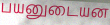
பயனுடையன